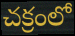
చక్రంలో